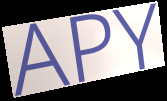
APY